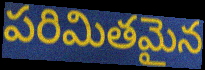
పరిమితమైన